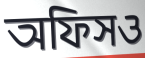
অফিসও